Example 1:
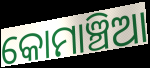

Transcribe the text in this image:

କୋମାଞ୍ଚିଆ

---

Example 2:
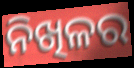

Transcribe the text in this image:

ନିଖିଳର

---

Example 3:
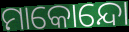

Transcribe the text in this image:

ମାକୋନ୍ଦୋ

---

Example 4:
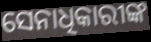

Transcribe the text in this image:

ସେନାଧିକାରୀଙ୍କ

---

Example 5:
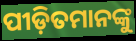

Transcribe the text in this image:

ପୀଡ଼ିତମାନଙ୍କୁ